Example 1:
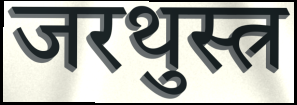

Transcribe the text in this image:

जरथुस्‍त्र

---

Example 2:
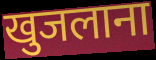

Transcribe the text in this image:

खुजलाना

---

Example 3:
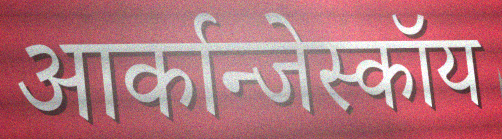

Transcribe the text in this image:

आर्कान्जेस्कॉय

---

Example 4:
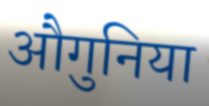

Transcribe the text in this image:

औगुनिया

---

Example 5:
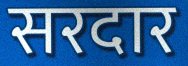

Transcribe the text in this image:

सरदार